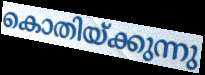
കൊതിയ്ക്കുന്നു